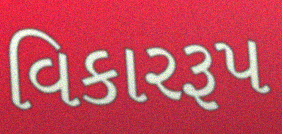
વિકારરૂપ